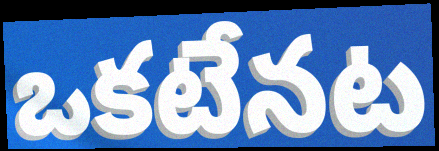
ఒకటేనట